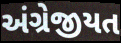
અંગ્રેજીયત